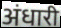
अंधारी